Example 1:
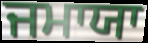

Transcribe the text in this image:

ਜਮਾਯਾ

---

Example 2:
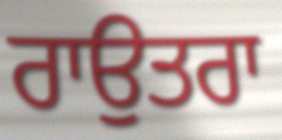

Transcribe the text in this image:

ਰਾਉਤਰਾ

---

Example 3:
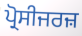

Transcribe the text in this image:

ਪ੍ਰੋਸੀਜਰਜ਼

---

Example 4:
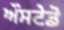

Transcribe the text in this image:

ਔਸਟੇਡੋ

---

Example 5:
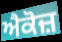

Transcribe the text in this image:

ਐਕੋਜ਼